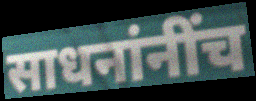
साधनांनींच